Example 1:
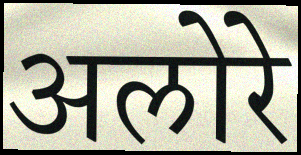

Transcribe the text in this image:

अलोरे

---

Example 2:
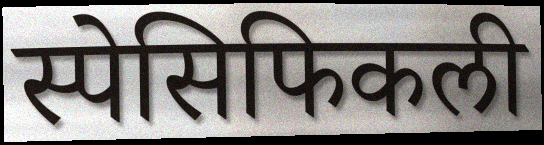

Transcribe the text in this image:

स्पेसिफिकली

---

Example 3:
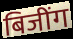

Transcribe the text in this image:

बिजींग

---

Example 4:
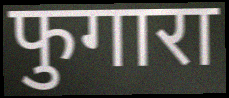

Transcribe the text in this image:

फुगारा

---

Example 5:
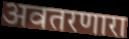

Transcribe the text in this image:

अवतरणारा